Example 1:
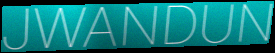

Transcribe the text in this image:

JWANDUN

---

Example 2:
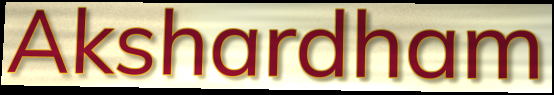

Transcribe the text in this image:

Akshardham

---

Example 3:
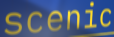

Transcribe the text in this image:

scenic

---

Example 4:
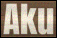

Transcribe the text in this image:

Aku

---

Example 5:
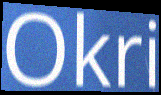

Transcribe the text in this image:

Okri